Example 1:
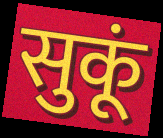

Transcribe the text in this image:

सुकूं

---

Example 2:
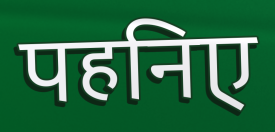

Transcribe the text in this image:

पहनिए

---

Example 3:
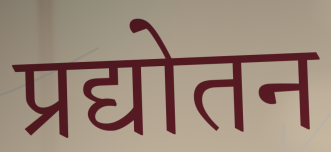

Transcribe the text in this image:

प्रद्योतन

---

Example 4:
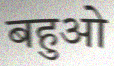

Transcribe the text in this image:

बहुओ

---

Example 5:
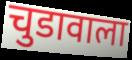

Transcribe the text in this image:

चुडावाला